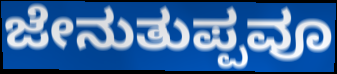
ಜೇನುತುಪ್ಪವೂ